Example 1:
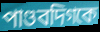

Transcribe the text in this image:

পাণ্ডবদিগকে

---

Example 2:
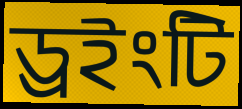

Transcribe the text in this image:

ড্রইংটি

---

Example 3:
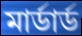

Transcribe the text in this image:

মার্ডার্ড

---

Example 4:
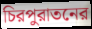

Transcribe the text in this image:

চিরপুরাতনের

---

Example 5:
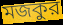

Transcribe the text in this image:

মজকুর